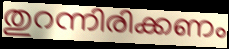
തുറന്നിരിക്കണം